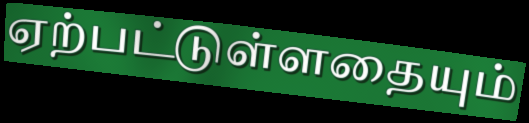
ஏற்பட்டுள்ளதையும்